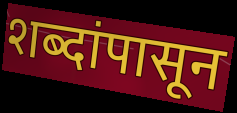
शब्दांपासून